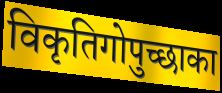
विकृतिगोपुच्छाका